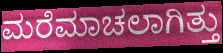
ಮರೆಮಾಚಲಾಗಿತ್ತು